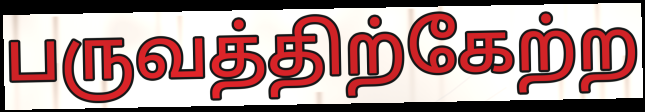
பருவத்திற்கேற்ற